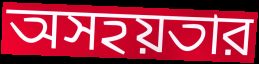
অসহয়তার